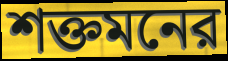
শক্তমনের